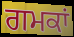
ਗਮਕਾਂ